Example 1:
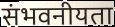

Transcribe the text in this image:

संभवनीयता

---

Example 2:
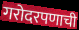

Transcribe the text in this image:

गरोदरपणाची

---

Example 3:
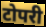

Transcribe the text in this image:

टोपरी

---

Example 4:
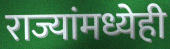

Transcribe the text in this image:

राज्यांमध्येही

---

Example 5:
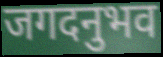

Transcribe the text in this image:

जगदनुभव